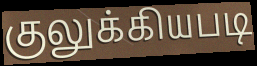
குலுக்கியபடி